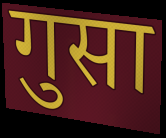
गुसा